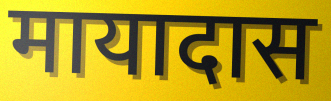
मायादास